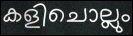
കളിചൊല്ലും